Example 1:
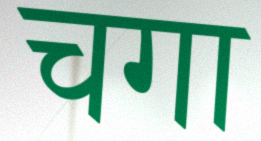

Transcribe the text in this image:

चगा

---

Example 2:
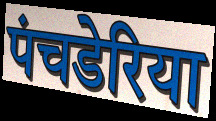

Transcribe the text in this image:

पंचडेरिया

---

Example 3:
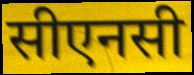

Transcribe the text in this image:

सीएनसी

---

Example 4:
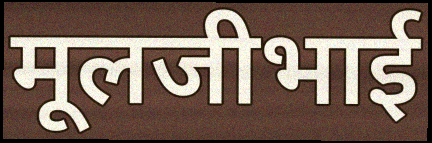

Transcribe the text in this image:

मूलजीभाई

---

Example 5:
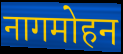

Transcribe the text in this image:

नागमोहन